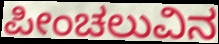
ಪೀಂಚಲುವಿನ